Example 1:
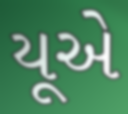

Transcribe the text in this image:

યૂએ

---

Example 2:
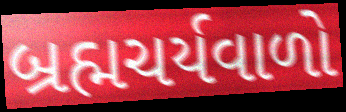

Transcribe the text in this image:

બ્રહ્મચર્યવાળો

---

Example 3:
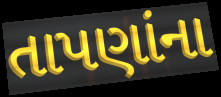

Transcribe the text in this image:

તાપણાંના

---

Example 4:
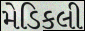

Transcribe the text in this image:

મેડિકલી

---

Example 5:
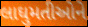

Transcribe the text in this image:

લાઘુમતીઓને